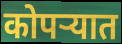
कोपऱ्यात